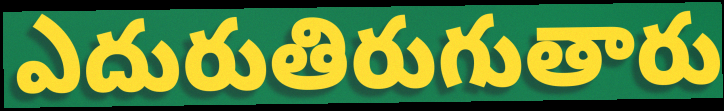
ఎదురుతిరుగుతారు